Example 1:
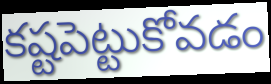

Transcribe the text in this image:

కష్టపెట్టుకోవడం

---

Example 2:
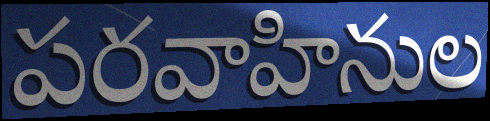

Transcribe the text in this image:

పరవాహినుల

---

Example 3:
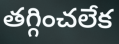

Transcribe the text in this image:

తగ్గించలేక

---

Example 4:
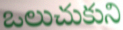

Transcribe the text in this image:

ఒలుచుకుని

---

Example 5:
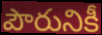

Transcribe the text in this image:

పౌరునికీ